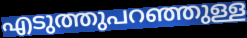
എടുത്തുപറഞ്ഞുള്ള